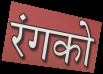
रंगको